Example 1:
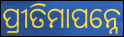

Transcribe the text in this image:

ପ୍ରୀତିମାପନ୍ନେ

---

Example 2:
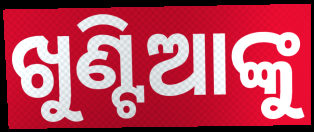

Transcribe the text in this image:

ଖୁଣ୍ଟିଆଙ୍କୁ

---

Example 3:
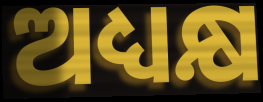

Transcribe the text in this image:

ଅଧ୍ୟକ୍ଷ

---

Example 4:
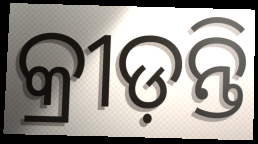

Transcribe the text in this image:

କ୍ରୀଡ଼ନ୍ତି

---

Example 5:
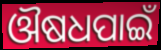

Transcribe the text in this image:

ଔଷଧପାଇଁ